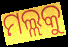
ମଲ୍ଲକୁ